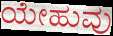
ಯೇಹುವು